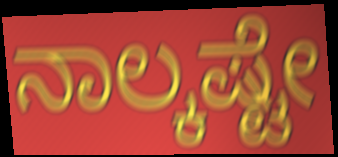
ನಾಲ್ಕಷ್ಟೇ